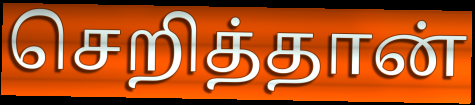
செறித்தான்